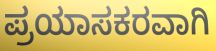
ಪ್ರಯಾಸಕರವಾಗಿ